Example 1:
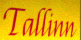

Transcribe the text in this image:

Tallinn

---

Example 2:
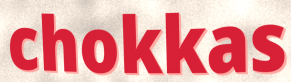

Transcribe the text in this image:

chokkas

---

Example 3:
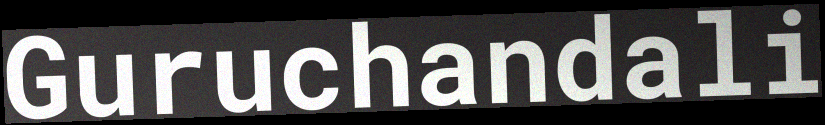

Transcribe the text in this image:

Guruchandali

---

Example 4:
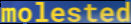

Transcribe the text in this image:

molested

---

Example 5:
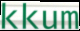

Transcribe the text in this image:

kkum